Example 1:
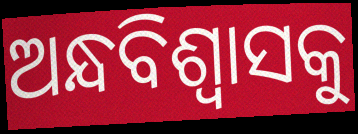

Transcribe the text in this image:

ଅନ୍ଧବିଶ୍ୱାସକୁ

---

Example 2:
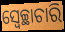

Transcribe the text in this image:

ସ୍ଵେଚ୍ଛାଚାରି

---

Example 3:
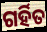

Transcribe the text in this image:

ଗର୍ହିତ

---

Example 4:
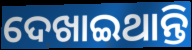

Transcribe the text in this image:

ଦେଖାଇଥାନ୍ତି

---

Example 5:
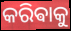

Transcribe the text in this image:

କରିଵାକୁ